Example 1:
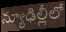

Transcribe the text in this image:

న్యూఢిల్లీలో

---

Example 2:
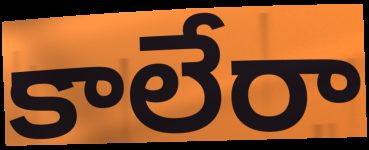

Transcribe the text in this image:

కాలేరా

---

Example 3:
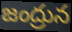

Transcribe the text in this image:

జంద్రున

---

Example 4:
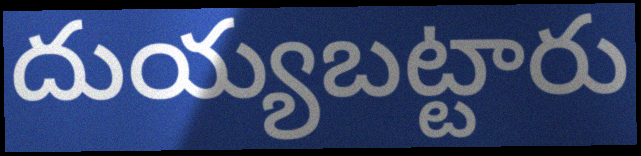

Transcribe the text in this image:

దుయ్యబట్టారు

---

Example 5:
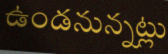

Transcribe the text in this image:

ఉండనున్నట్లు